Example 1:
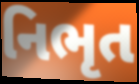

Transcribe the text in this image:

નિભૃત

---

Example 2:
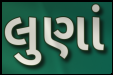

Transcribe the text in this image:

લુણાં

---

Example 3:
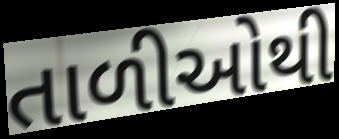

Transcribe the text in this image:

તાળીઓથી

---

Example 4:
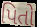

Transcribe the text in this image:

પિતો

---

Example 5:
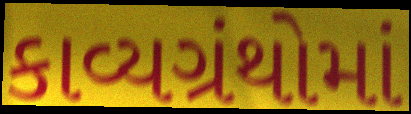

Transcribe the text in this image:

કાવ્યગ્રંથોમાં